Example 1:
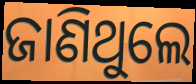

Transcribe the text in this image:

ଜାଣିଥୁଲେ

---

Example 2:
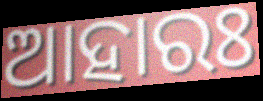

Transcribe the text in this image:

ଆହାରଃ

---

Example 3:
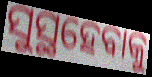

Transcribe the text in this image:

ସୁସ୍ଥହେବାକୁ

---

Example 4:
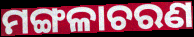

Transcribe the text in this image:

ମଙ୍ଗଳାଚରଣ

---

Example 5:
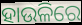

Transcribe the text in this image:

ହାଉଳିରେ